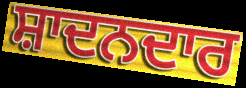
ਸ਼ਾਦਨਦਾਰ